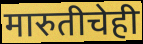
मारुतीचेही